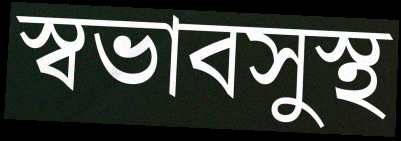
স্বভাবসুস্থ